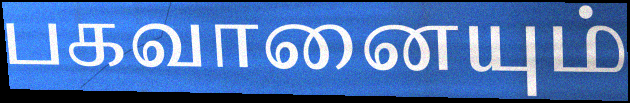
பகவானையும்